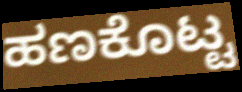
ಹಣಕೊಟ್ಟ